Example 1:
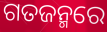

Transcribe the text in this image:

ଗତଜନ୍ମରେ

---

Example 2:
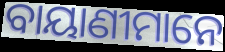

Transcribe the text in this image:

ବାୟାଣୀମାନେ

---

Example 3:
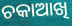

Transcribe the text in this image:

ଚକାଆଖି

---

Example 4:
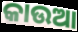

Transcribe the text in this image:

କାଉଆ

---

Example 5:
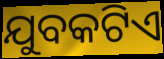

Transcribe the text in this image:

ଯୁବକଟିଏ